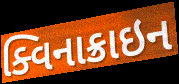
ક્વિનાક્રાઇન